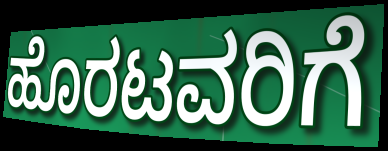
ಹೊರಟವರಿಗೆ